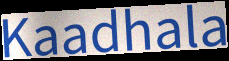
Kaadhala